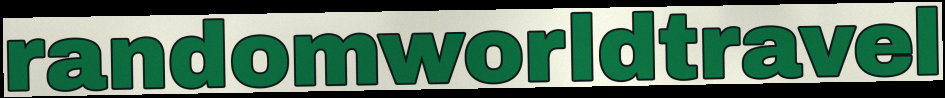
randomworldtravel